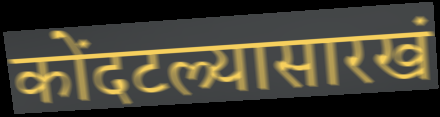
कोंदटल्यासारखं